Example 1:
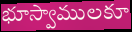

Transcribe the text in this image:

భూస్వాములకూ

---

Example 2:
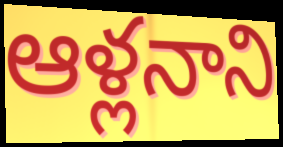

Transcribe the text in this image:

ఆళ్లనాని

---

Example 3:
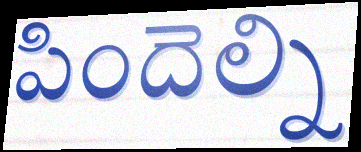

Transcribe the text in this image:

పిందెల్ని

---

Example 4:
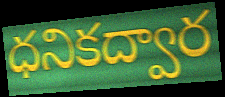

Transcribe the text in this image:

ధనికద్వార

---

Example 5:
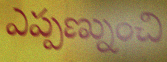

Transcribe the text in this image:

ఎప్పణ్నుంచి